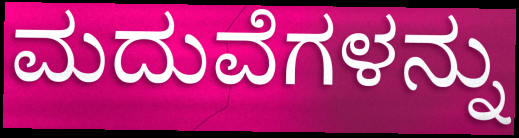
ಮದುವೆಗಳನ್ನು